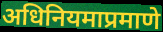
अधिनियमाप्रमाणे